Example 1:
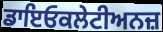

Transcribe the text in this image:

ਡਾਇਓਕਲੇਟੀਅਨਜ਼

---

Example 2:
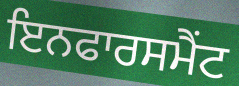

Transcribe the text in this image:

ਇਨਫਾਰਸਮੈਂਟ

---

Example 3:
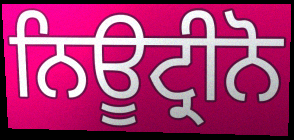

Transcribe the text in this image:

ਨਿਊਟ੍ਰੀਨੋ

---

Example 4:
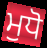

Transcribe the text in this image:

ਮੁਧੋ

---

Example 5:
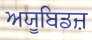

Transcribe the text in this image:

ਅਯੂਬਿਡਜ਼